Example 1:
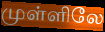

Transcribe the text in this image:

முள்ளிலே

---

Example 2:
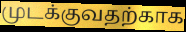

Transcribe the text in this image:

முடக்குவதற்காக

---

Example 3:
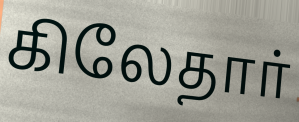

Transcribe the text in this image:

கிலேதார்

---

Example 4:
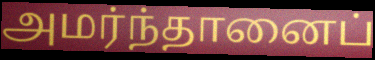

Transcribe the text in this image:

அமர்ந்தானைப்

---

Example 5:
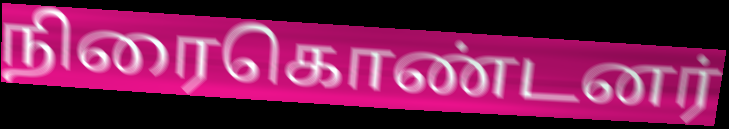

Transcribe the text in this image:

நிரைகொண்டனர்